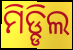
ମିଡ୍ଡିଲ